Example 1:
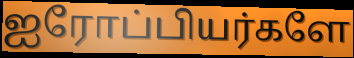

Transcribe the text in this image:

ஐரோப்பியர்களே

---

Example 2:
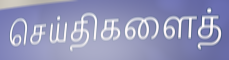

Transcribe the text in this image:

செய்திகளைத்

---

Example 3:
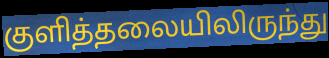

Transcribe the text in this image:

குளித்தலையிலிருந்து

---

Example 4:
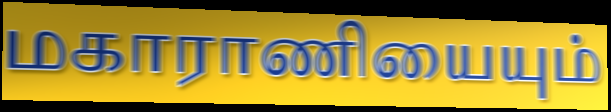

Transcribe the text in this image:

மகாராணியையும்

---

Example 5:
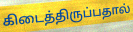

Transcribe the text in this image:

கிடைத்திருப்பதால்